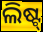
ଲିଷ୍ଟ୍